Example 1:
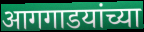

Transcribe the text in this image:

आगगाडयांच्या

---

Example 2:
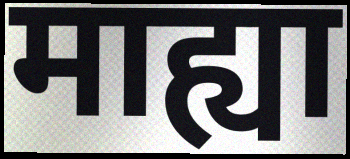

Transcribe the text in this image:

माह्या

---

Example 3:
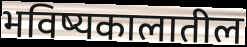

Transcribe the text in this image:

भविष्यकालातील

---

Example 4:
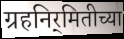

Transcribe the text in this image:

ग्रहनिर्मितीच्या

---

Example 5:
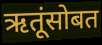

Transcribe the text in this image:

ऋतूंसोबत